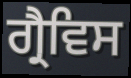
ਗ੍ਰੈਵਿਸ